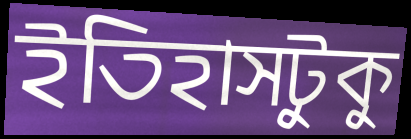
ইতিহাসটুকু